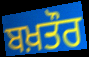
ਬਖ਼ਤੌਰ